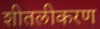
शीतलीकरण